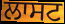
ਲਾਸਟ